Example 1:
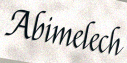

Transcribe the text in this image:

Abimelech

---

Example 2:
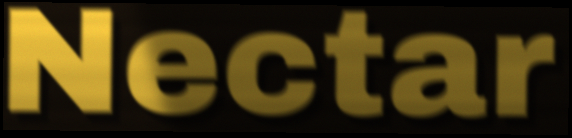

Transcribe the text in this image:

Nectar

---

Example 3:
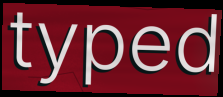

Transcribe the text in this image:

typed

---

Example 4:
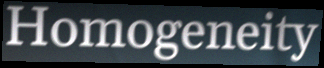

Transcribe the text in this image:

Homogeneity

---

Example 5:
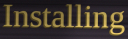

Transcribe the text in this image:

Installing